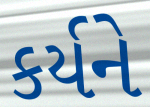
કર્યને